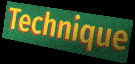
Technique